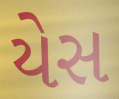
યેસ